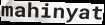
mahinyat